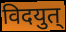
विदयुत्